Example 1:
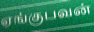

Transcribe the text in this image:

ஏங்குபவன்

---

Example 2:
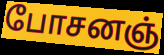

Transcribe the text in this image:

போசனஞ்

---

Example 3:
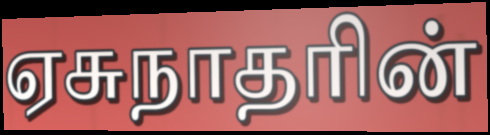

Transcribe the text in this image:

ஏசுநாதரின்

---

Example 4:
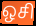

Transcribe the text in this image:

ஒசி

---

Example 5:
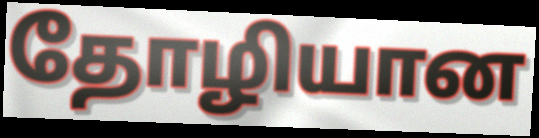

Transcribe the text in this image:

தோழியான